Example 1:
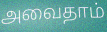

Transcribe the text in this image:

அவைதாம்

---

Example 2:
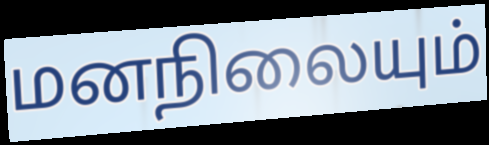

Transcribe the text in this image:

மனநிலையும்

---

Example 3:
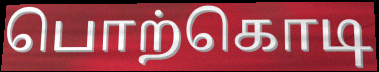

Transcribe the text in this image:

பொற்கொடி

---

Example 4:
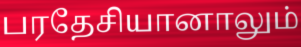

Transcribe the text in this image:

பரதேசியானாலும்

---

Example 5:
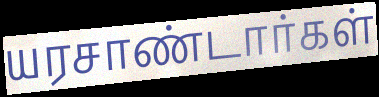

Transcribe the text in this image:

யரசாண்டார்கள்